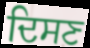
ਦਿਸਣ